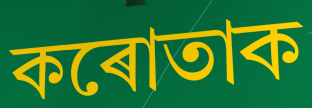
কৰোতাক